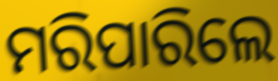
ମରିପାରିଲେ